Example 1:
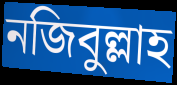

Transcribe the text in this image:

নজিবুল্লাহ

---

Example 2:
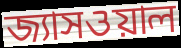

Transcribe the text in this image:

জ্যাসওয়াল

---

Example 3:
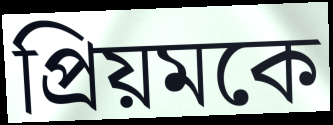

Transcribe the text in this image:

প্রিয়মকে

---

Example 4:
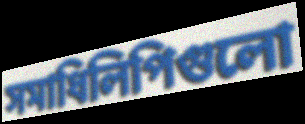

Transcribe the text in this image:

সমাধিলিপিগুলো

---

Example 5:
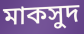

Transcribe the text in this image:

মাকসুদ